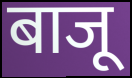
बाजू